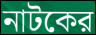
নাটকের